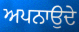
ਅਪਨਾਉਦੇ